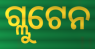
ଗ୍ଲୁଟେନ